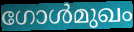
ഗോൾമുഖം